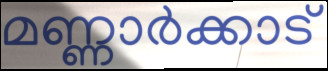
മണ്ണാർക്കാട്